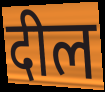
दील